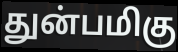
துன்பமிகு